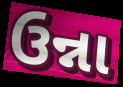
ઉન્ના